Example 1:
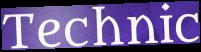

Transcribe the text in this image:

Technic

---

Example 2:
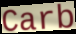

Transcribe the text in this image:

Carb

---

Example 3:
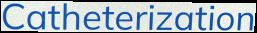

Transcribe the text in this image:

Catheterization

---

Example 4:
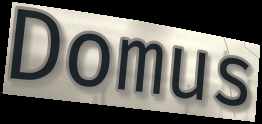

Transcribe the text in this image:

Domus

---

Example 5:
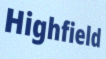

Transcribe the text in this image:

Highfield